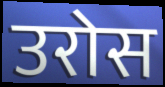
उरोस